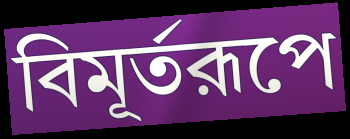
বিমূর্তরূপে